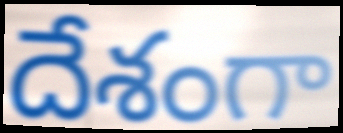
దేశంగా